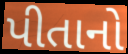
પીતાનો